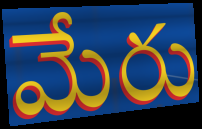
మేరు